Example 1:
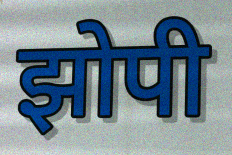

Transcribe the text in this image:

झोपी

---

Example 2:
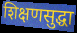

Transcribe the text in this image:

शिक्षणसुद्धा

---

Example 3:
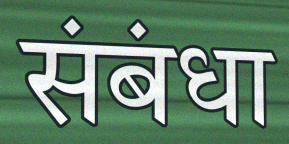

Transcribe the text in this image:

संबंधा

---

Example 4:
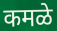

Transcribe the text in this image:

कमळे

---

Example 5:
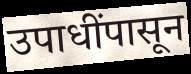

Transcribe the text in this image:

उपाधींपासून